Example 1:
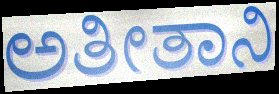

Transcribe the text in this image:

ಅತೀತಾನಿ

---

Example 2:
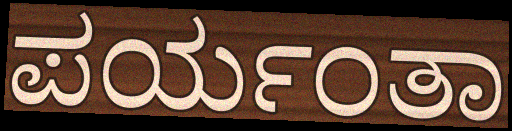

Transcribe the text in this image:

ಪರ್ಯಂತಾ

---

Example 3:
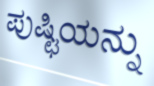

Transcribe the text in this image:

ಪುಷ್ಟಿಯನ್ನು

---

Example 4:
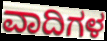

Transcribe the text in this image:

ವಾದಿಗಳ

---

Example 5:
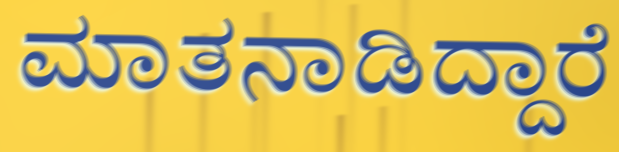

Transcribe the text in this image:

ಮಾತನಾಡಿದ್ದಾರೆ